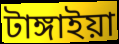
টাঙ্গাইয়া